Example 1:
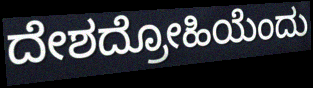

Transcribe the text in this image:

ದೇಶದ್ರೋಹಿಯೆಂದು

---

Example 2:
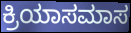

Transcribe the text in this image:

ಕ್ರಿಯಾಸಮಾಸ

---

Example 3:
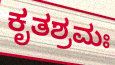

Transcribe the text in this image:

ಕೃತಶ್ರಮಃ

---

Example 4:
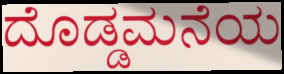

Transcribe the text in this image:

ದೊಡ್ಡಮನೆಯ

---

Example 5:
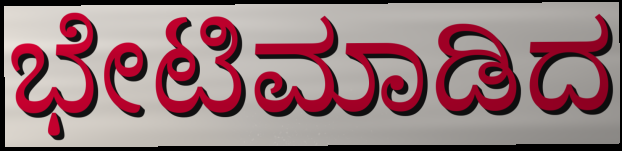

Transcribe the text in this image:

ಭೇಟಿಮಾಡಿದ